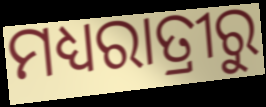
ମଧ୍ୟରାତ୍ରୀରୁ